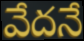
వేదనే